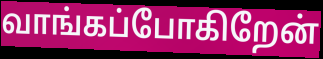
வாங்கப்போகிறேன்